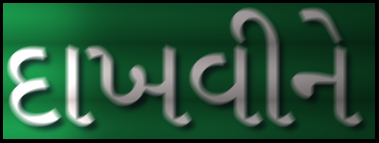
દાખવીને